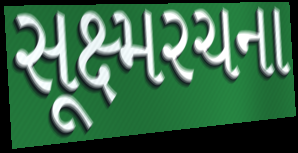
સૂક્ષ્મરચના